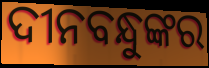
ଦୀନବନ୍ଧୁଙ୍କର